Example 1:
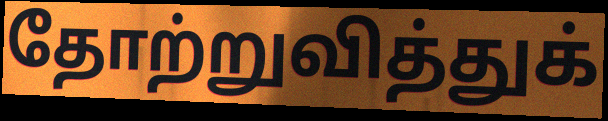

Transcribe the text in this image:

தோற்றுவித்துக்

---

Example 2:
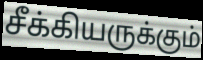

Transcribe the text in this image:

சீக்கியருக்கும்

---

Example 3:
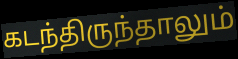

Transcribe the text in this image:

கடந்திருந்தாலும்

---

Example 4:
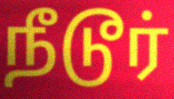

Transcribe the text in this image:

நீடூர்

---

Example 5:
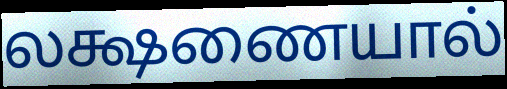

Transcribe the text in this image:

லக்ஷணையால்